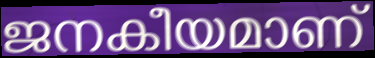
ജനകീയമാണ്